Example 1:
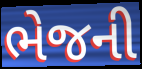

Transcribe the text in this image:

ભેજની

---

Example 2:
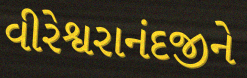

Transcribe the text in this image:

વીરેશ્વરાનંદજીને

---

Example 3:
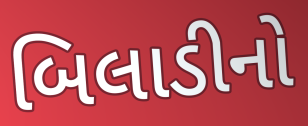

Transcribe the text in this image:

બિલાડીનો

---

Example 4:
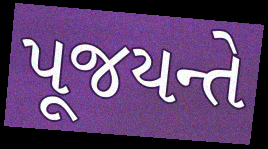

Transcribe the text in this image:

પૂજયન્તે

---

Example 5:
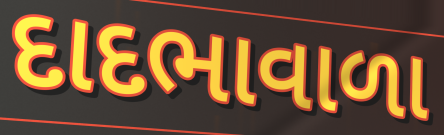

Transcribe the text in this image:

દાદભાવાળા